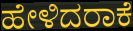
ಹೇಳಿದರಾಕೆ